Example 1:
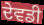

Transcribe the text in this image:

ਦੇਵਡੀ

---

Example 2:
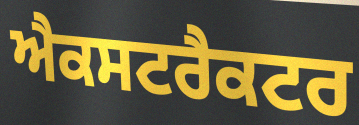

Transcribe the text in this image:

ਐਕਸਟਰੈਕਟਰ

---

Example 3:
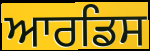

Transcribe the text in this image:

ਆਰਡਿਸ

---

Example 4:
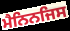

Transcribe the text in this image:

ਮੈਨਿਨਜਿਸ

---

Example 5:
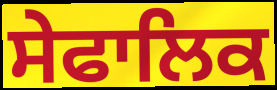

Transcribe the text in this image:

ਸੇਫਾਲਿਕ